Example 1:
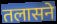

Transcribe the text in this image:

तलासने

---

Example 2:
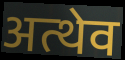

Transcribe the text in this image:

अत्थेव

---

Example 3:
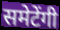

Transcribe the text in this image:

समेटेंगी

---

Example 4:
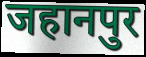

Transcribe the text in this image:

जहानपुर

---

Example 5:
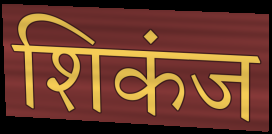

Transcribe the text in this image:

शिकंज